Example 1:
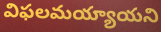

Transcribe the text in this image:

విఫలమయ్యాయని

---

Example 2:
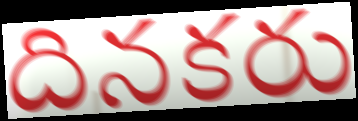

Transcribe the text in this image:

దినకరు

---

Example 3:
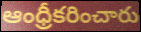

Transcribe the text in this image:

ఆంధ్రీకరించారు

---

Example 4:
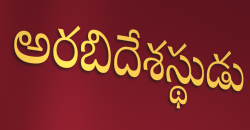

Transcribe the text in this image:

అరబిదేశస్థుడు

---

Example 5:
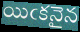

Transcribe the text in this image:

యిఁకనైన